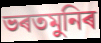
ভৰতমুনিৰ